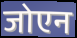
जोएन